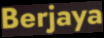
Berjaya